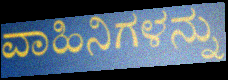
ವಾಹಿನಿಗಳನ್ನು